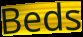
Beds